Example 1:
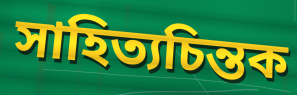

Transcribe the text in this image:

সাহিত্যচিন্তক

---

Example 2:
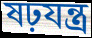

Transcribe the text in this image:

ষঢ়যন্ত্র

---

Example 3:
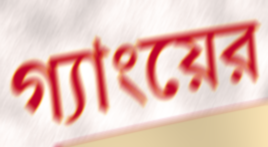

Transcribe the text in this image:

গ্যাংয়ের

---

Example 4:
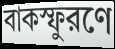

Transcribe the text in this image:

বাকস্ফুরণে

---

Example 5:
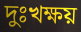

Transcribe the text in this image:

দুঃখক্ষয়